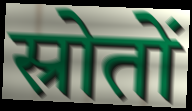
स्रोतों